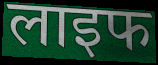
लाइफ